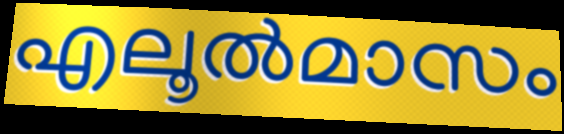
എലൂൽമാസം